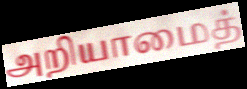
அறியாமைத்